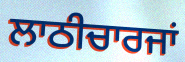
ਲਾਠੀਚਾਰਜਾਂ